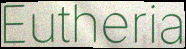
Eutheria